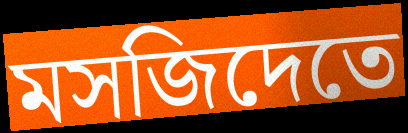
মসজিদেতে